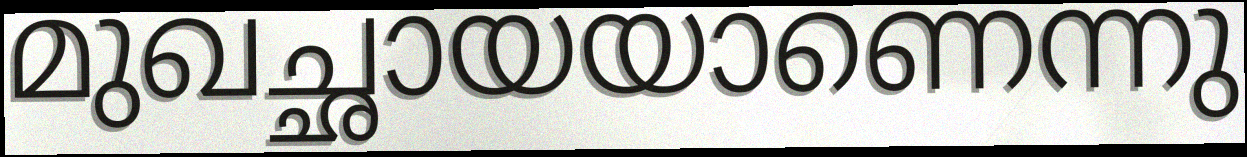
മുഖച്ഛായയാണെന്നു